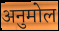
अनुमोल